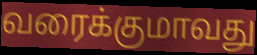
வரைக்குமாவது